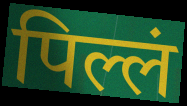
पिल्लं